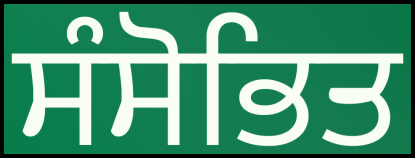
ਸੰਸੋਭਿਤ